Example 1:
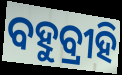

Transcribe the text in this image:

ବହୁବ୍ରୀହି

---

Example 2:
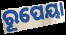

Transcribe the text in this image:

ରୂପେୟା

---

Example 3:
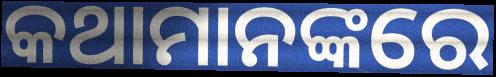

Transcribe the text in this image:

କଥାମାନଙ୍କରେ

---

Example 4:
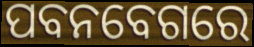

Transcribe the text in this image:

ପବନବେଗରେ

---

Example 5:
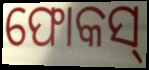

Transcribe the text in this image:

ଫୋକସ୍